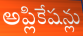
అప్లికేషన్లు